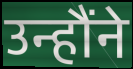
उन्हौंने